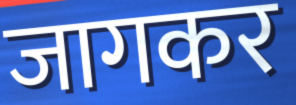
जागकर